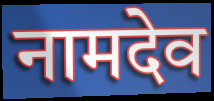
नामदेव